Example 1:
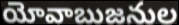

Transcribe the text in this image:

యోవాబుజనుల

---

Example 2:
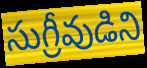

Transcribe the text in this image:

సుగ్రీవుడిని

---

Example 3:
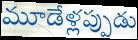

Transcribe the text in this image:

మూడేళ్లప్పుడు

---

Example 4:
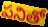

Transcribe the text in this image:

పనితో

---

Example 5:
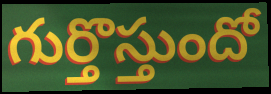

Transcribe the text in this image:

గుర్తొస్తుందో